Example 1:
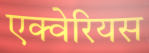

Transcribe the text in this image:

एक्वेरियस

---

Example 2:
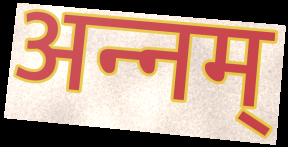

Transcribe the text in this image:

अन्नम्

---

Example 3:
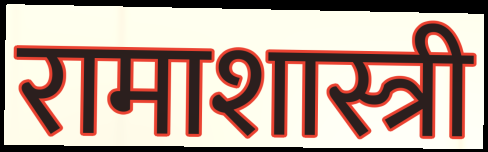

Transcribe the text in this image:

रामाशास्त्री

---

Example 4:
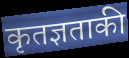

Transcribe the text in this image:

कृतज्ञताकी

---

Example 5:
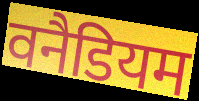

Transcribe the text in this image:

वनैडियम